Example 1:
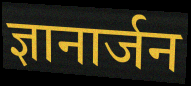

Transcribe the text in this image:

ज्ञानार्जन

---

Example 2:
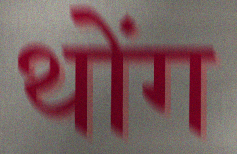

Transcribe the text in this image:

थोंग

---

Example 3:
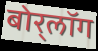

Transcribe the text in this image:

बोर्‌लॉग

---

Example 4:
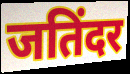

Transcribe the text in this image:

जतिंदर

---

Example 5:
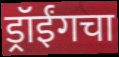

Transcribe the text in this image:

ड्रॉईंगचा